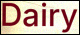
Dairy